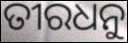
ତୀରଧନୁ